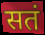
सतं